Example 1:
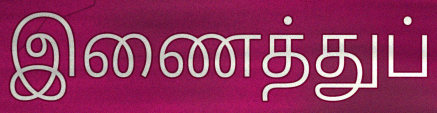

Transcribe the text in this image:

இணைத்துப்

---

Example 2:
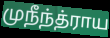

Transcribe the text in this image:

முநீந்த்ராய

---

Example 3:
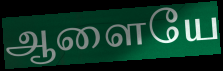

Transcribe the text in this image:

ஆளையே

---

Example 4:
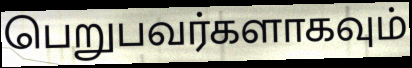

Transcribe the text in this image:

பெறுபவர்களாகவும்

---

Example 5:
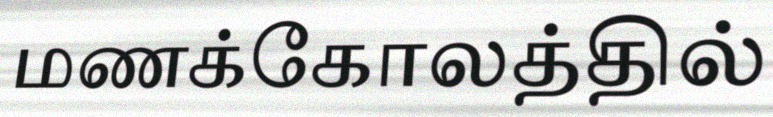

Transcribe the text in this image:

மணக்கோலத்தில்